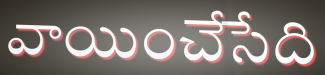
వాయించేసేది